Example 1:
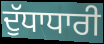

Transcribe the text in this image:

ਦੁੱਧਾਧਾਰੀ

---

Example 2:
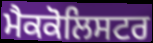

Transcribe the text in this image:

ਮੈਕਕੋਲਿਸਟਰ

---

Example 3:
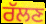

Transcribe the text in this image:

ਰੱਲਣ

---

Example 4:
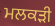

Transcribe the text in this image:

ਮਲਕੜੀ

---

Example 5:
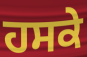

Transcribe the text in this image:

ਹਸਕੇ